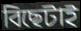
বিছেটাই